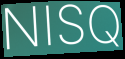
NISQ